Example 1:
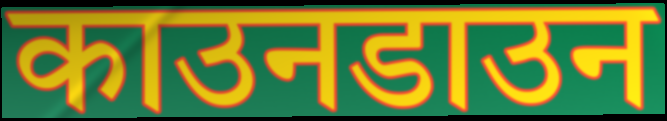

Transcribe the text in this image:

काउनडाउन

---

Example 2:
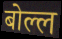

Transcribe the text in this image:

बोल्ल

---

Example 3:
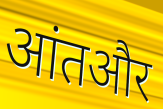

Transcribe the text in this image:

आंतऔर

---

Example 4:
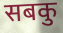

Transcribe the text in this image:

सबकु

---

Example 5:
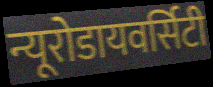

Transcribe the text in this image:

न्यूरोडायवर्सिटी